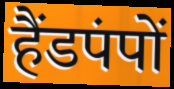
हैंडपंपों